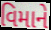
વિમાને